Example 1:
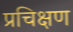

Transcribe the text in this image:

प्रचिक्षण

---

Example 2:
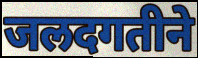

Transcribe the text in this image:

जलदगतीने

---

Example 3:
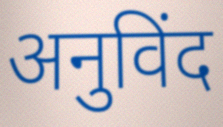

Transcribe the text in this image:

अनुविंद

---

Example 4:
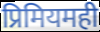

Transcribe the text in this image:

प्रिमियमही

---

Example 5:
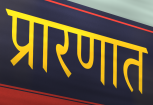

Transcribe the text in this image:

प्रारणात